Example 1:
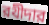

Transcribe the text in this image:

রথীদার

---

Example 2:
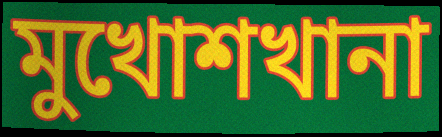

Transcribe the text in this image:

মুখোশখানা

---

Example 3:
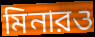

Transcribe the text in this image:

মিনারও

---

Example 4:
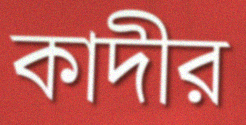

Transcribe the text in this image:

কাদীর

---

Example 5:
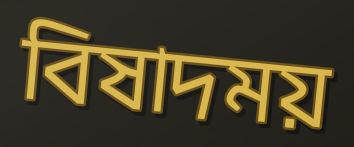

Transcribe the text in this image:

বিষাদময়